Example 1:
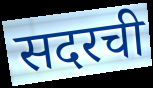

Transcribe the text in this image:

सदरची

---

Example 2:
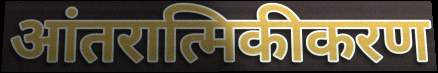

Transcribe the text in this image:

आंतरात्मिकीकरण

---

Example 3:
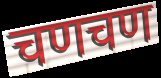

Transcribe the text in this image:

चणचण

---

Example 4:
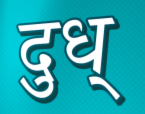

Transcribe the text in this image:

दुध्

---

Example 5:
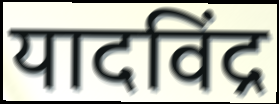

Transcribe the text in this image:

यादविंद्र